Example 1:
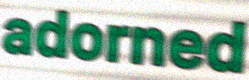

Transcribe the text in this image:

adorned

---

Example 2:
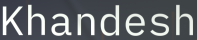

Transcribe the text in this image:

Khandesh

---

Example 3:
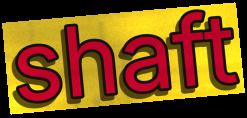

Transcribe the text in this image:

shaft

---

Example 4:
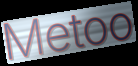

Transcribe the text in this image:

Metoo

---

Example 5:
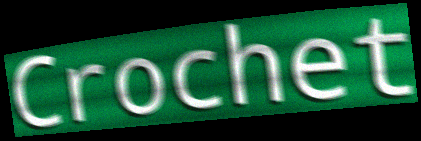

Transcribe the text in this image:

Crochet